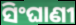
ସିଂଘାଣୀ